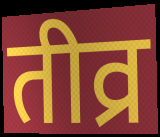
तीव्र